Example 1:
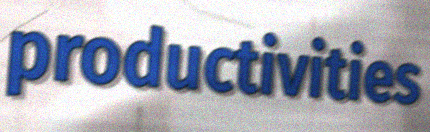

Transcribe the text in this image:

productivities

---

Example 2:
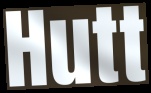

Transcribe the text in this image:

Hutt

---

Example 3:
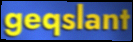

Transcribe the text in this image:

geqslant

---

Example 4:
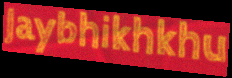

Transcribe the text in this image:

Jaybhikhkhu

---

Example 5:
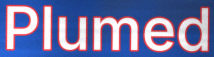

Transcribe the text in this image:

Plumed